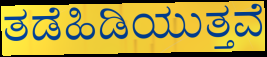
ತಡೆಹಿಡಿಯುತ್ತವೆ